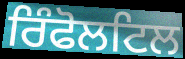
ਰਿੰਫੋਲਟਿਲ